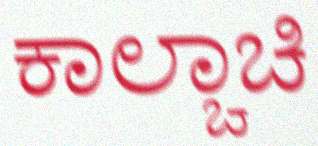
ಕಾಲ್ಚಾಚಿ